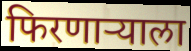
फिरणाऱ्याला